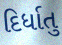
દિર્ધાતુ